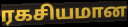
ரகசியமான